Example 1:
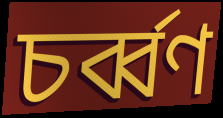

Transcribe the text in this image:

চর্ব্বণ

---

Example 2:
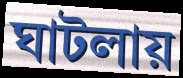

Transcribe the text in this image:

ঘাটলায়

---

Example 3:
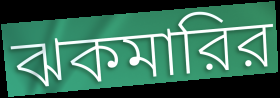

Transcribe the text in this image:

ঝকমারির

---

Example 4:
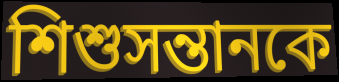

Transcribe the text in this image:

শিশুসন্তানকে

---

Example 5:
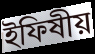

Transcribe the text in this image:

ইফিষীয়